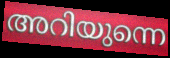
അറിയുന്നെ